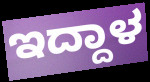
ಇದ್ದಾಳ